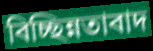
বিচ্ছিন্নতাবাদ